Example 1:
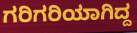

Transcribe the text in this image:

ಗರಿಗರಿಯಾಗಿದ್ದ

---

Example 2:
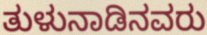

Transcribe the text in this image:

ತುಳುನಾಡಿನವರು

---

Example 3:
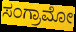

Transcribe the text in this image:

ಸಂಗ್ರಾಮೋ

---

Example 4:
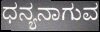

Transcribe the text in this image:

ಧನ್ಯನಾಗುವ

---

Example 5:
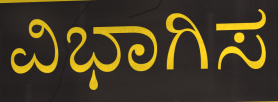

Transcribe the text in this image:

ವಿಭಾಗಿಸ